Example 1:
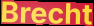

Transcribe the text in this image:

Brecht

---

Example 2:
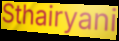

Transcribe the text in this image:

Sthairyani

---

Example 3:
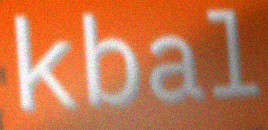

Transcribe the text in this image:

kbal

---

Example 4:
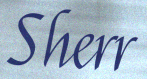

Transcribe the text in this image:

Sherr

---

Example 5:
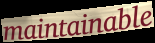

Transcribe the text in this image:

maintainable